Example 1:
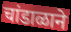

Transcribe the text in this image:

चांडाळाने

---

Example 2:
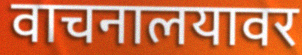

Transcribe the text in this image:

वाचनालयावर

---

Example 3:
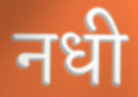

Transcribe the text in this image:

नधी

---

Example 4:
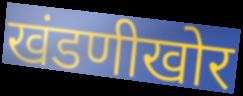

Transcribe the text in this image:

खंडणीखोर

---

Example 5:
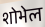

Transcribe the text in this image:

शोभेल